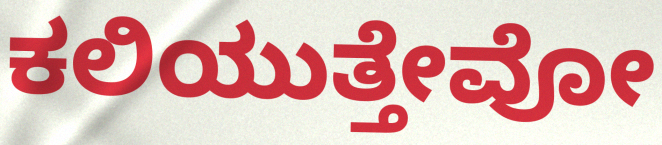
ಕಲಿಯುತ್ತೇವೋ